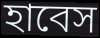
হাবেস